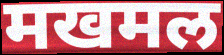
मखमल